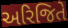
અરિજિતે